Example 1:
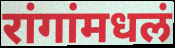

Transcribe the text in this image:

रांगांमधलं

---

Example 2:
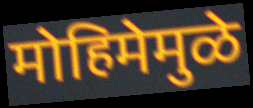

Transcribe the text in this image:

मोहिमेमुळे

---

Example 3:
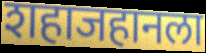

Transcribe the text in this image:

शहाजहानला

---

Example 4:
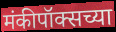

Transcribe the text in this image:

मंकीपॉक्सच्या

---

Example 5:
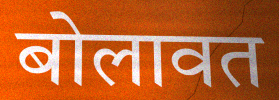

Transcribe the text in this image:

बोलावत